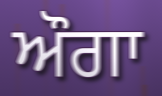
ਔਗਾ